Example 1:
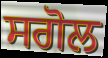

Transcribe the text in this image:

ਸਗੋਲ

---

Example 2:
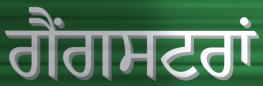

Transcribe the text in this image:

ਗੈਂਗਸਟਰਾਂ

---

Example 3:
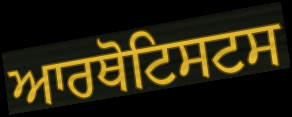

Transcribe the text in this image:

ਆਰਥੋਟਿਸਟਸ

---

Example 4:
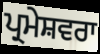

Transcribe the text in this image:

ਪ੍ਰਮੇਸ਼ਵਰਾ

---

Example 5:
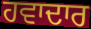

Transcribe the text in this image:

ਹਵਾਦਾਰ